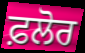
ਫ਼ਲੋਰ